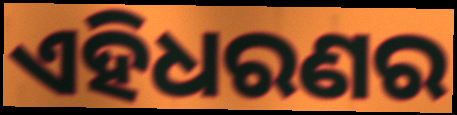
ଏହିଧରଣର